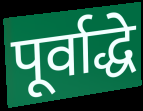
पूर्वाद्धे